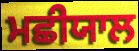
ਮਛੀਯਾਲ